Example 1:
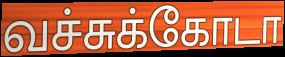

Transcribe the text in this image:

வச்சுக்கோடா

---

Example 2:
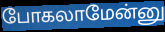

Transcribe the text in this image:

போகலாமேன்னு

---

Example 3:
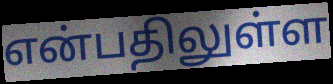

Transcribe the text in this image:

என்பதிலுள்ள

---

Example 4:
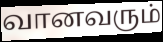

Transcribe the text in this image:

வானவரும்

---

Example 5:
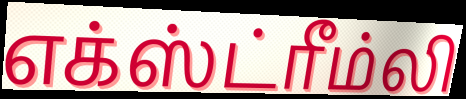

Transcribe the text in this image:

எக்ஸ்ட்ரீம்லி